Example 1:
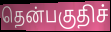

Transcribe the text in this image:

தென்பகுதிச்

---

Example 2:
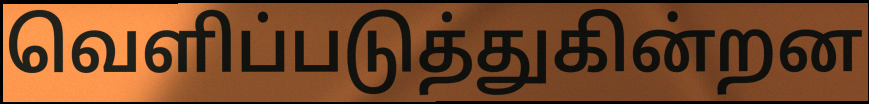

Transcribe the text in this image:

வெளிப்படுத்துகின்றன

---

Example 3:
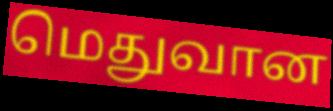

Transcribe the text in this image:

மெதுவான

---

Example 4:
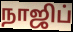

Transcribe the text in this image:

நாஜிப்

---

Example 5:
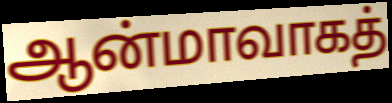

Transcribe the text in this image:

ஆன்மாவாகத்